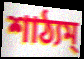
শাঠ্যম্